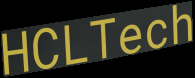
HCLTech